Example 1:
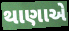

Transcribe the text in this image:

થાણાએ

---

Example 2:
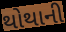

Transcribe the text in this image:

થોથાની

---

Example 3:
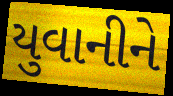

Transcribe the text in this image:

યુવાનીને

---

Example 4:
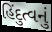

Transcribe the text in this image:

હિંદુત્વનું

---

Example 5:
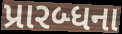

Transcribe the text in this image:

પ્રારબ્ધના